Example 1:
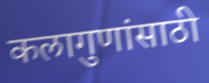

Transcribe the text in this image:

कलागुणांसाठी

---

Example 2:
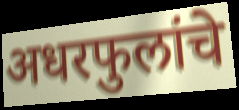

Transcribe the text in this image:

अधरफुलांचे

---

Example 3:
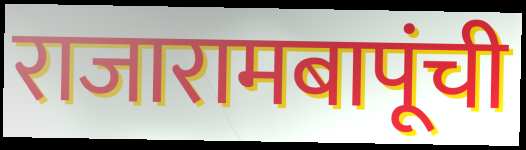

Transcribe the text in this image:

राजारामबापूंची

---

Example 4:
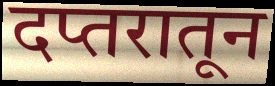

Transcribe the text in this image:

दप्तरातून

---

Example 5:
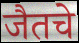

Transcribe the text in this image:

जैतचे